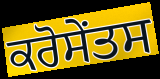
ਕਰੋਸੇਂਤਸ